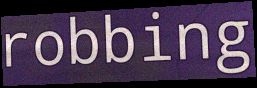
robbing